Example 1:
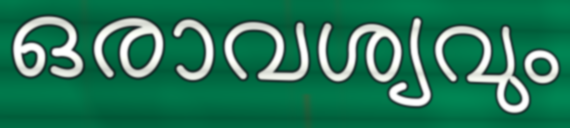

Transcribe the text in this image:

ഒരാവശ്യവും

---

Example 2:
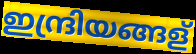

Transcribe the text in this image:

ഇന്ദ്രിയങ്ങള്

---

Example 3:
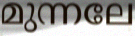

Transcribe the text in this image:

മുന്നലേ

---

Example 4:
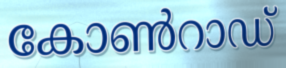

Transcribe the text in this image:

കോൺറാഡ്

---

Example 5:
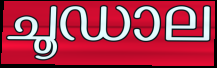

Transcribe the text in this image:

ചൂഡാല